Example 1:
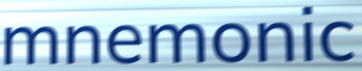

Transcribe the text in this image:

mnemonic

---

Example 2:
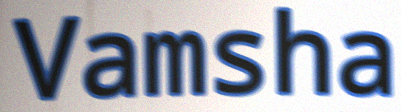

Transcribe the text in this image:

Vamsha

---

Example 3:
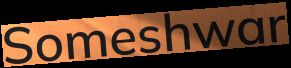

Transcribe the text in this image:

Someshwar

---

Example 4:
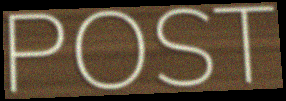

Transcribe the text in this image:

POST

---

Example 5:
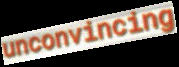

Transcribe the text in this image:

unconvincing